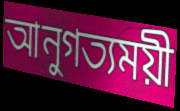
আনুগত্যময়ী